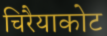
चिरैयाकोट